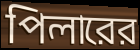
পিলারের